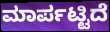
ಮಾರ್ಪಟ್ಟಿದೆ